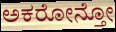
ಅಕರೋನ್ತೋ